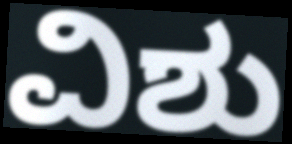
ವಿಶು